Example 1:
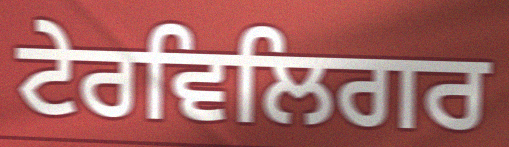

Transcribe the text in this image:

ਟੇਰਵਿਲਿਗਰ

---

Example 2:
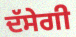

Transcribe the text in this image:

ਦੱਸੇਗੀ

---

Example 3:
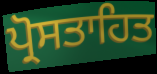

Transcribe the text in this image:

ਪ੍ਰੋਸਤਾਹਿਤ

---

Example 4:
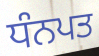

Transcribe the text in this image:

ਧੰਨਪਤ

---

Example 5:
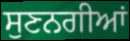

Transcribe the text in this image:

ਸੁਣਨਗੀਆਂ